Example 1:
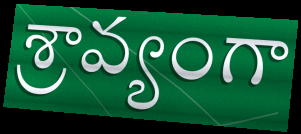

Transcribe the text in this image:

శ్రావ్యంగా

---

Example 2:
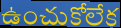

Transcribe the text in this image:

ఉంచుకోలేక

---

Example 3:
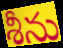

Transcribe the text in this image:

శీను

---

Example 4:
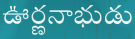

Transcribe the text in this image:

ఊర్ణనాభుడు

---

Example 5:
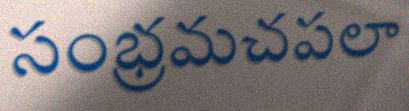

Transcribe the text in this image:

సంభ్రమచపలా